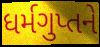
ધર્મગુપ્તને